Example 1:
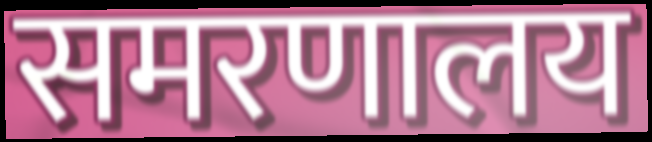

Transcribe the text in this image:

समरणालय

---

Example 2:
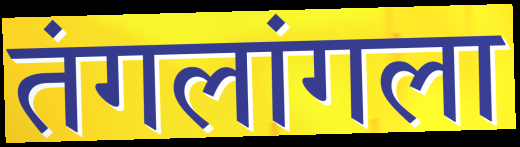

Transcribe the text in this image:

तंगलांगला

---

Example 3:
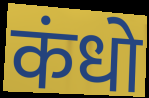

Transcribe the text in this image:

कंधो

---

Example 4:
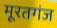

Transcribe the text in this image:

मूरतगंज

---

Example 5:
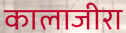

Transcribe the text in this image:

कालाजीरा